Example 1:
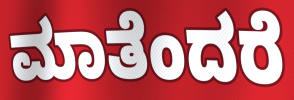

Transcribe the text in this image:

ಮಾತೆಂದರೆ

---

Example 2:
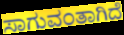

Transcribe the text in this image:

ಸಾಗುವಂತಾಗಿದೆ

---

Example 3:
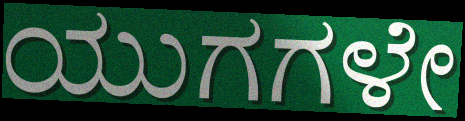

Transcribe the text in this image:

ಯುಗಗಳೇ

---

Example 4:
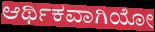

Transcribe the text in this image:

ಆರ್ಥಿಕವಾಗಿಯೋ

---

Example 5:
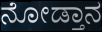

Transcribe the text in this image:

ನೋಡ್ತಾನ